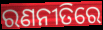
ରଣନୀତିରେ